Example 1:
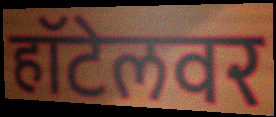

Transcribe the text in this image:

हॉटेलवर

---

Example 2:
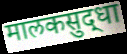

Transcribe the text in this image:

मालकसुद्धा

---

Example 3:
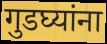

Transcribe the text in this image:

गुडघ्यांना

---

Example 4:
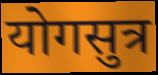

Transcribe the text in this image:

योगसुत्र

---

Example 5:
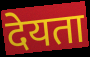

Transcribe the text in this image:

देयता